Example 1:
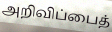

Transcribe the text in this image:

அறிவிப்பைத்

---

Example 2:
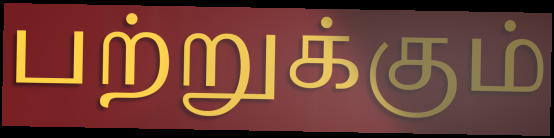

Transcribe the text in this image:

பற்றுக்கும்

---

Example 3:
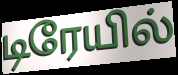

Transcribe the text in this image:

டிரேயில்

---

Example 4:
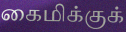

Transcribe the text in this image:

கைமிக்குக்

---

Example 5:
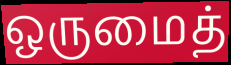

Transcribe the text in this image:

ஒருமைத்